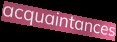
acquaintances